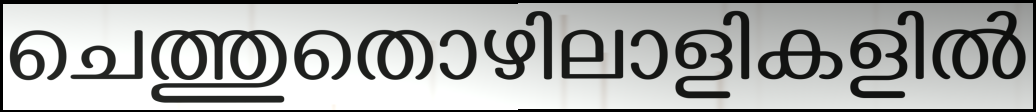
ചെത്തുതൊഴിലാളികളിൽ